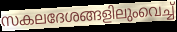
സകലദേശങ്ങളിലുംവെച്ച്